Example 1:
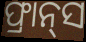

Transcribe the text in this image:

ଫ୍ରାନ୍‌ସ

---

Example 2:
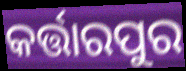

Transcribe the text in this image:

କର୍ତ୍ତାରପୁର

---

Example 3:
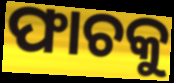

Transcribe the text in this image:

ଫାଚକୁ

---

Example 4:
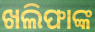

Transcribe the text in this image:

ଖଲିଫାଙ୍କ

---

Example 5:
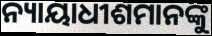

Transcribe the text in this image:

ନ୍ୟାୟାଧୀଶମାନଙ୍କୁ